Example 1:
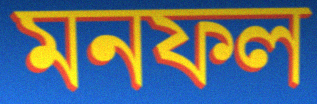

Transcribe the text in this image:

মনফল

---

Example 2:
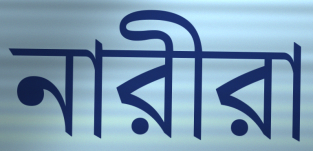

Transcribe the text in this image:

নারীরা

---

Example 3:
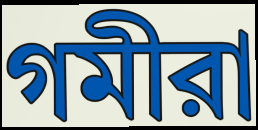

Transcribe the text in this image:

গমীরা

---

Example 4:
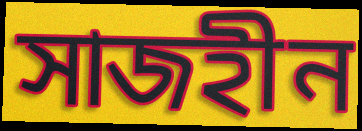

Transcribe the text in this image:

সাজহীন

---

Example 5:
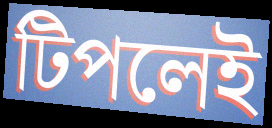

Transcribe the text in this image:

টিপলেই